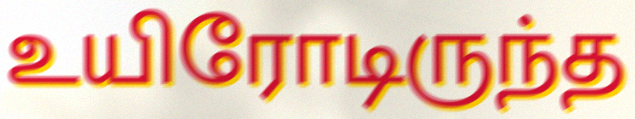
உயிரோடிருந்த